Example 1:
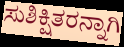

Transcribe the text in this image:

ಸುಶಿಕ್ಷಿತರನ್ನಾಗಿ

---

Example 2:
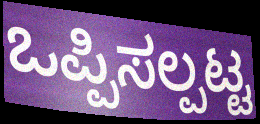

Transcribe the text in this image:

ಒಪ್ಪಿಸಲ್ಪಟ್ಟ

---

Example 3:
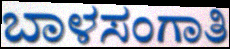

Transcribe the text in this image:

ಬಾಳಸಂಗಾತಿ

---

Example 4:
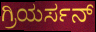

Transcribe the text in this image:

ಗ್ರಿಯರ್ಸನ್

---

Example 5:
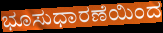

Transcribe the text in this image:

ಭೂಸುಧಾರಣೆಯಿಂದ